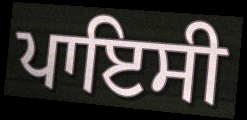
ਪਾਇਸੀ